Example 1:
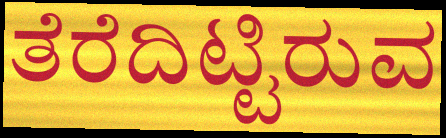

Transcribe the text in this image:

ತೆರೆದಿಟ್ಟಿರುವ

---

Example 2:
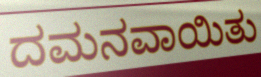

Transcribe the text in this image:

ದಮನವಾಯಿತು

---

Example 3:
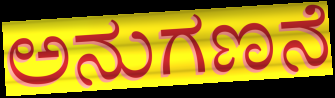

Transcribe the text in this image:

ಅನುಗಣನೆ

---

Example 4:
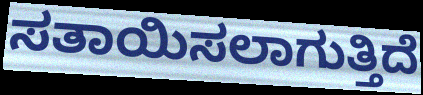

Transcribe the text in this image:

ಸತಾಯಿಸಲಾಗುತ್ತಿದೆ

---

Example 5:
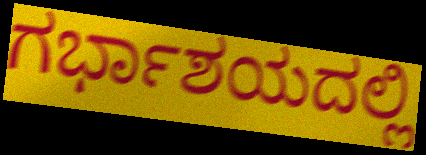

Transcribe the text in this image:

ಗರ್ಭಾಶಯದಲ್ಲಿ